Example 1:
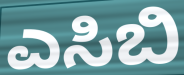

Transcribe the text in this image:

ಎಸಿಬಿ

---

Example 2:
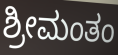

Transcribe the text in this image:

ಶ್ರೀಮಂತಂ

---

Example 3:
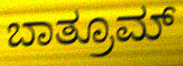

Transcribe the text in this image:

ಬಾತ್ರೂಮ್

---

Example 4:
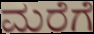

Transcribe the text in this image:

ಮರೆಗೆ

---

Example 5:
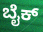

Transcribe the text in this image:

ಬೈಕ್